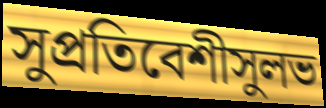
সুপ্রতিবেশীসুলভ